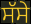
ਸੱਸੇ